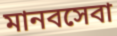
মানবসেবা